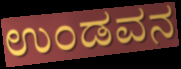
ಉಂಡವನ